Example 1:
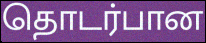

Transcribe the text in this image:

தொடர்பான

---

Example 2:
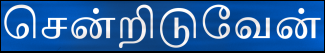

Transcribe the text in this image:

சென்றிடுவேன்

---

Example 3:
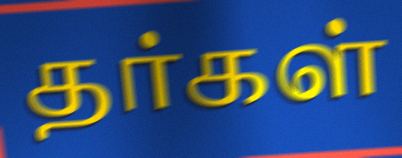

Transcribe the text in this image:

தர்கள்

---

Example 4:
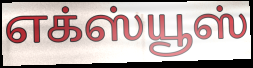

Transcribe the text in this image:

எக்ஸ்யூஸ்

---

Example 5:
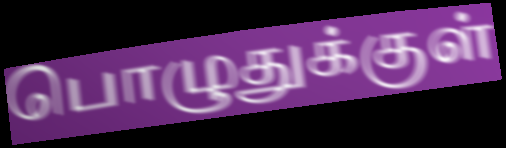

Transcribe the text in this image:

பொழுதுக்குள்